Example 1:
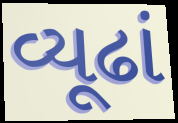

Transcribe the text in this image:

વ્યૂઢાં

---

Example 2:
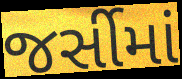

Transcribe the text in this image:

જર્સીમાં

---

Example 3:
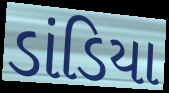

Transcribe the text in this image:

ડાંડિયા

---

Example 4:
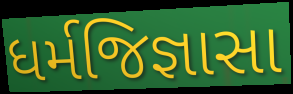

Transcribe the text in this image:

ધર્મજિજ્ઞાસા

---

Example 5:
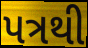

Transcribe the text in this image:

પત્રથી